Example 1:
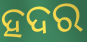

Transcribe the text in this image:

ହଦର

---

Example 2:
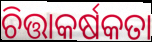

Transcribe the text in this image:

ଚିତ୍ତାକର୍ଷକତା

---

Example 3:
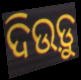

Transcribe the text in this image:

ଦିଉଡ଼ୁ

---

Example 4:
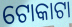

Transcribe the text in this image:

ଟୋକାଟା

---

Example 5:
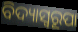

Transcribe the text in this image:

ବିଦ୍ୟାସ୍ୱରୂପା